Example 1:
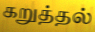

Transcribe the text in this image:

கறுத்தல்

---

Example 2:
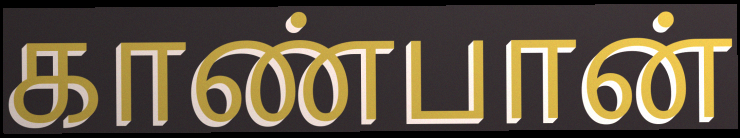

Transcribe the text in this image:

காண்பான்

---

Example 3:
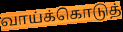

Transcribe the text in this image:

வாய்க்கொடுத்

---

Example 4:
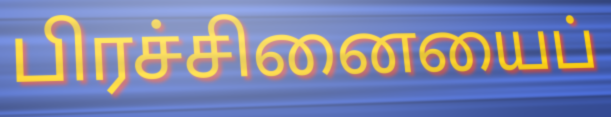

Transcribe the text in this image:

பிரச்சினையைப்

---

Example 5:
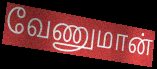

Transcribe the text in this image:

வேணுமான்